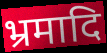
भ्रमादि